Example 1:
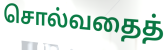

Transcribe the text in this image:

சொல்வதைத்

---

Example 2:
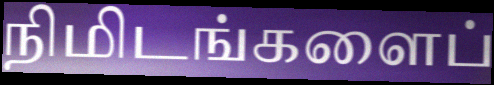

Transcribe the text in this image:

நிமிடங்களைப்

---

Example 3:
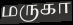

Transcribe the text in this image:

மருகா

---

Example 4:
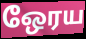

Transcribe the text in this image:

ஒேரய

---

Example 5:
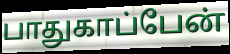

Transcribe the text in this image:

பாதுகாப்பேன்